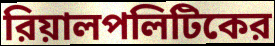
রিয়ালপলিটিকের